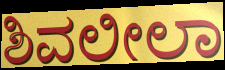
ಶಿವಲೀಲಾ